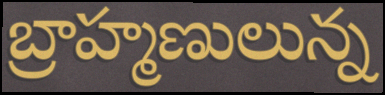
బ్రాహ్మణులున్న